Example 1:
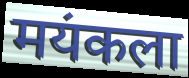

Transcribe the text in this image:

मयंकला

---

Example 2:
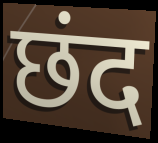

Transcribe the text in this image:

छंद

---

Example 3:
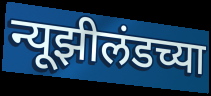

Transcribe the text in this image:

न्यूझीलंडच्या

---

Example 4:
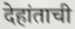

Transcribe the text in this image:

देहांताची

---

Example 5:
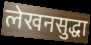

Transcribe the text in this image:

लेखनसुद्धा